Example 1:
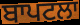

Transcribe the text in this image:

ਬਾਪਟਲਾ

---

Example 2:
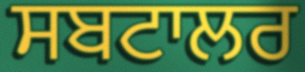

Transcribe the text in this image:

ਸਬਟਾਲਰ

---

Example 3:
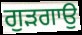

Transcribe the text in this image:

ਗੁੜਗਾਉ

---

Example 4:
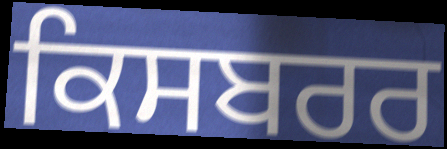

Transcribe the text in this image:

ਕਿਸਬਰਰ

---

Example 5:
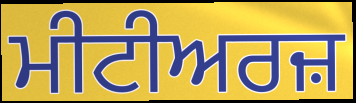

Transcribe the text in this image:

ਮੀਟੀਅਰਜ਼